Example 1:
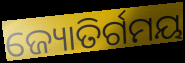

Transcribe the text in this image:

ଜ୍ୟୋତିର୍ଗମୟ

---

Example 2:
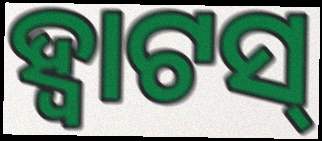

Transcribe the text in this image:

ହ୍ୱାଟସ୍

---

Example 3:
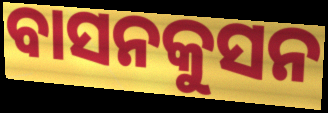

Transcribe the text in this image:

ବାସନକୁସନ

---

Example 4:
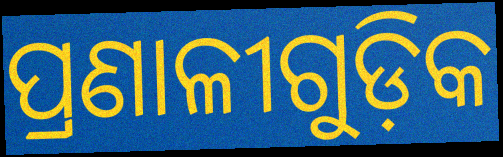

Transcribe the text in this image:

ପ୍ରଣାଳୀଗୁଡ଼ିକ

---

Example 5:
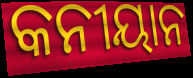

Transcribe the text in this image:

କନୀୟାନ